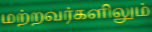
மற்றவர்களிலும்